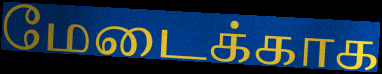
மேடைக்காக